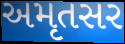
અમૃતસર